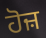
ਹੋਜ਼